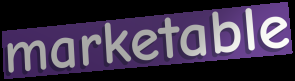
marketable